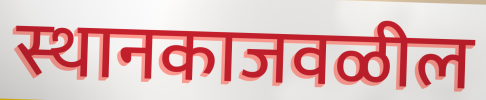
स्थानकाजवळील